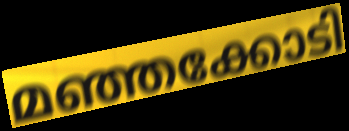
മഞ്ഞക്കോടി